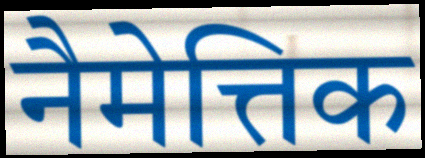
नैमेत्तिक